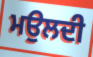
ਮਉਲਦੀ